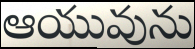
ఆయువును